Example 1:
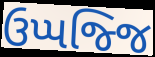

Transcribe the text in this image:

ઉપ્પજ્જિ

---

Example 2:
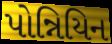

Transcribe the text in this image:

પોન્નિયિન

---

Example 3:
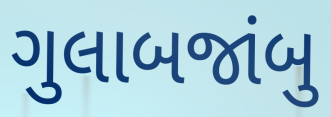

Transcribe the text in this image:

ગુલાબજાંબુ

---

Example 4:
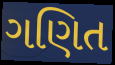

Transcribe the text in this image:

ગણિત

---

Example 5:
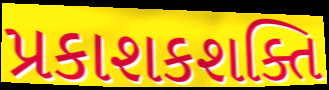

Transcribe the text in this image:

પ્રકાશકશક્તિ